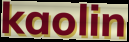
kaolin